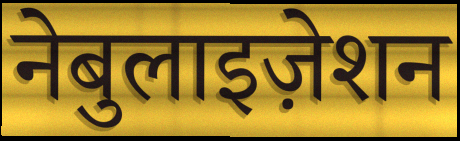
नेबुलाइज़ेशन